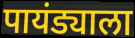
पायंड्याला